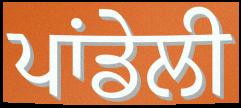
ਪਾਂਡੇਲੀ